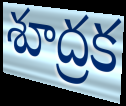
శూద్రక